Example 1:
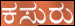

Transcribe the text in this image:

ಕಸುರು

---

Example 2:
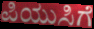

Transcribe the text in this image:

ಪಿಯುಸಿಗೆ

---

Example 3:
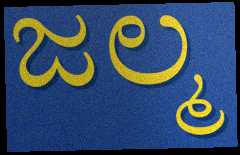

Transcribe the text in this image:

ಜಲ್ಮ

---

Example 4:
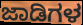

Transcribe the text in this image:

ಜಾಡಿಗಳ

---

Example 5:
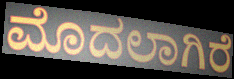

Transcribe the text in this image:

ಮೊದಲಾಗಿರೆ